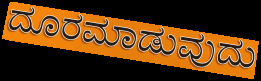
ದೂರಮಾಡುವುದು